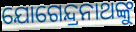
ଯୋଗେନ୍ଦ୍ରନାଥଙ୍କୁ